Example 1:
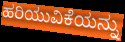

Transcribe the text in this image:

ಹರಿಯುವಿಕೆಯನ್ನು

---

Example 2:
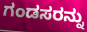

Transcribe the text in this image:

ಗಂಡಸರನ್ನು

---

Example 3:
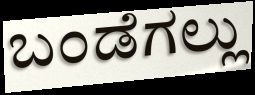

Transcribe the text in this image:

ಬಂಡೆಗಲ್ಲು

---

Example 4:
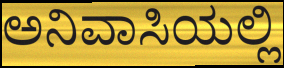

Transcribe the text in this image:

ಅನಿವಾಸಿಯಲ್ಲಿ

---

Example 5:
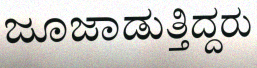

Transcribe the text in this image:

ಜೂಜಾಡುತ್ತಿದ್ದರು